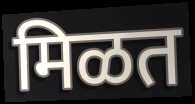
मिळत